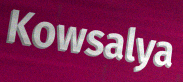
Kowsalya